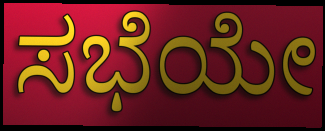
ಸಭೆಯೇ